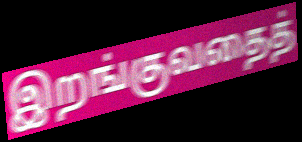
இறங்குவதைத்